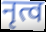
नृत्व